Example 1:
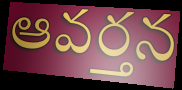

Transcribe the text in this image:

ఆవర్తన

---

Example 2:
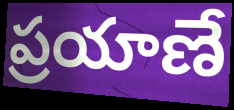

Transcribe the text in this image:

ప్రయాణే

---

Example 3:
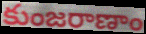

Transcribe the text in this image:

కుంజరాణాం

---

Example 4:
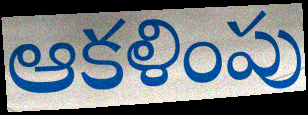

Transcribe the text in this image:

ఆకళింపు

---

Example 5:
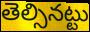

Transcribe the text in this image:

తెల్సినట్టు